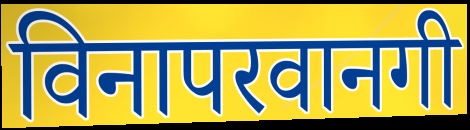
विनापरवानगी